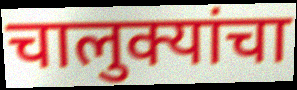
चालुक्यांचा